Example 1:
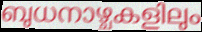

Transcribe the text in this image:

ബുധനാഴ്ചകളിലും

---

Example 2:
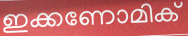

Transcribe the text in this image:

ഇക്കണോമിക്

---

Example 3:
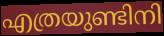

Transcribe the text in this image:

എത്രയുണ്ടിനി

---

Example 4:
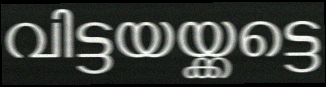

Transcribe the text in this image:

വിട്ടയയ്ക്കട്ടെ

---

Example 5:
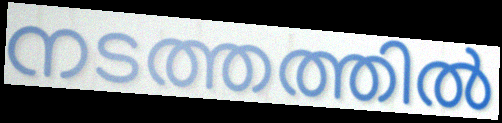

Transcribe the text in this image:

നടത്തത്തിൽ